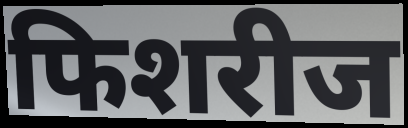
फिशरीज